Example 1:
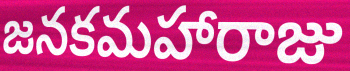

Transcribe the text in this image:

జనకమహారాజు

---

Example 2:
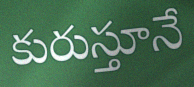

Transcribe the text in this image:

కురుస్తూనే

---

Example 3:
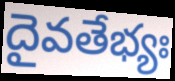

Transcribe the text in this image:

దైవతేభ్యః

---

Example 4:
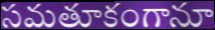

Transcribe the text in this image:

సమతూకంగానూ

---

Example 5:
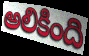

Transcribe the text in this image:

అలికింది